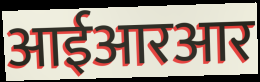
आईआरआर